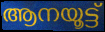
ആനയൂട്ട്